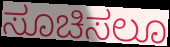
ಸೂಚಿಸಲೂ